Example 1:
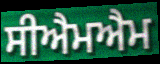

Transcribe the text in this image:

ਸੀਐਮਐਮ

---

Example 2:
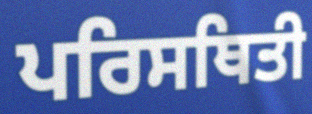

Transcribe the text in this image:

ਪਰਿਸਥਿਤੀ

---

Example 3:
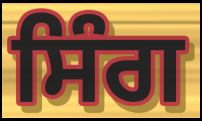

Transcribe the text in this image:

ਸਿੰਗ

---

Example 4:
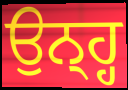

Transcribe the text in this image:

ਉਨ੍ਹ੍ਹ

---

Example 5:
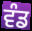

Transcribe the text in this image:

ਵੰਡ